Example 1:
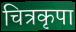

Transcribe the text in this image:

चित्रकृपा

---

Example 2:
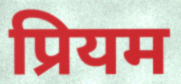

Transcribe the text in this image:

प्रियम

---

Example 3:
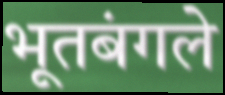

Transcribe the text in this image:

भूतबंगले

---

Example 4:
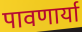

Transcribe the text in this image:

पावणार्या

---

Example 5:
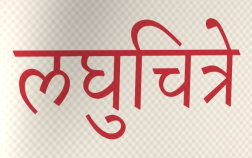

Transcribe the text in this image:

लघुचित्रे